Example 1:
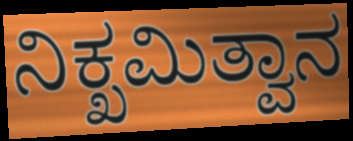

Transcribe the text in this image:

ನಿಕ್ಖಮಿತ್ವಾನ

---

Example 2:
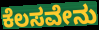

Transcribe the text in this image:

ಕೆಲಸವೇನು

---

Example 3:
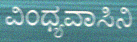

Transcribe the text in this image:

ವಿಂಧ್ಯವಾಸಿನಿ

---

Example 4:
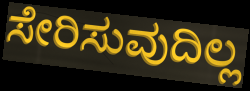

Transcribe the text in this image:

ಸೇರಿಸುವುದಿಲ್ಲ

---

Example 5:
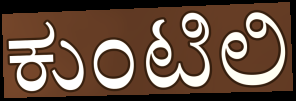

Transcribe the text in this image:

ಕುಂಟಿಲಿ